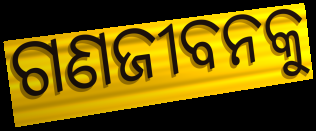
ଗଣଜୀବନକୁ